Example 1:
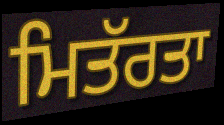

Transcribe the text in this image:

ਮਿਤੱਰਤਾ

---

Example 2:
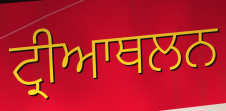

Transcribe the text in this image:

ਟ੍ਰੀਆਥਲਨ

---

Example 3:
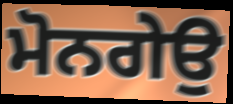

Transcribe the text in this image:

ਮੋਨਗੇਉ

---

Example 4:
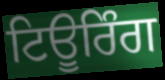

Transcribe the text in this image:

ਟਿਊਰਿੰਗ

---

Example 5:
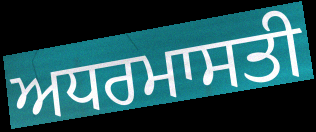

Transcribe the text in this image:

ਅਧਰਮਾਸਤੀ